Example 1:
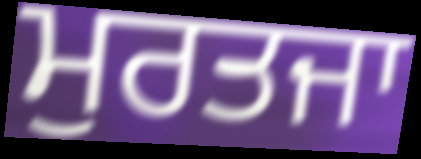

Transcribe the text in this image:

ਮੁਰਤਜਾ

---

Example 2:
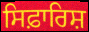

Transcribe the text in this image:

ਸਿਫ਼ਾਰਿਸ਼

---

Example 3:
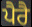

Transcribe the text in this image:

ਪੈਰੈ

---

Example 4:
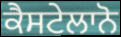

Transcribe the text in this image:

ਕੈਸਟੇਲਾਨੋ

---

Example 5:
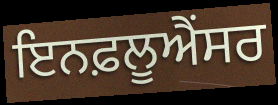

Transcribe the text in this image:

ਇਨਫ਼ਲੂਐਂਸਰ